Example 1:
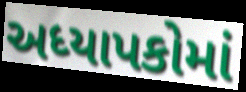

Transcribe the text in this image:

અધ્યાપકોમાં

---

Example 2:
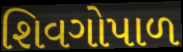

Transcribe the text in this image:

શિવગોપાળ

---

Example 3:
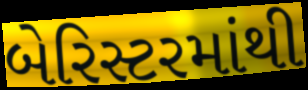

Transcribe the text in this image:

બેરિસ્ટરમાંથી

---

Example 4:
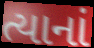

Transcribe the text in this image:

ત્યાનાં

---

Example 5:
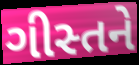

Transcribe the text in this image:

ગીસ્તને